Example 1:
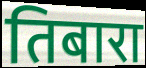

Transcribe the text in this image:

तिबारा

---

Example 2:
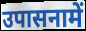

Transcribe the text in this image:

उपासनामें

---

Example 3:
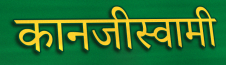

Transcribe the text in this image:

कानजीस्वामी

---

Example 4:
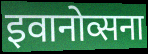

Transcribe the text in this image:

इवानोव्सना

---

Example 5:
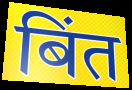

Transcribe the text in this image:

बिंत